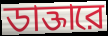
ডাক্তারে